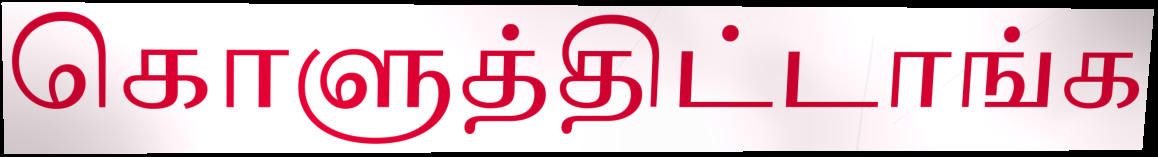
கொளுத்திட்டாங்க